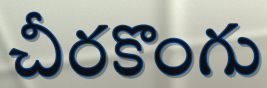
చీరకొంగు